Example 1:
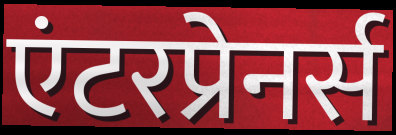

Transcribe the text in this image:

एंटरप्रेनर्स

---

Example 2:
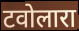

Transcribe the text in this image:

टवोलारा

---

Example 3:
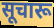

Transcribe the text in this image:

सूचारू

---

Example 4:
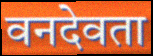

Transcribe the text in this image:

वनदेवता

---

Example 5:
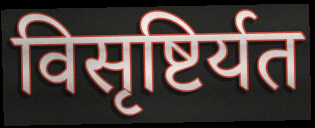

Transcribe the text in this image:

विसृष्टिर्यत